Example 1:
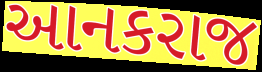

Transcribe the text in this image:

આનકરાજ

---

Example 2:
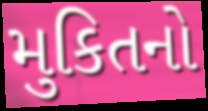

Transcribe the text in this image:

મુકિતનો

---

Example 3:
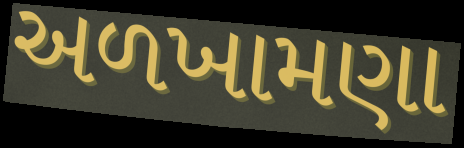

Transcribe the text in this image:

અળખામણા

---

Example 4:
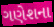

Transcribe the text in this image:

ગણેશના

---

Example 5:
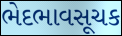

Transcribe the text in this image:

ભેદભાવસૂચક